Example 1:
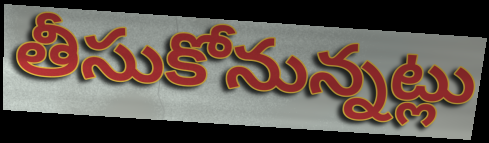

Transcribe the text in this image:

తీసుకోనున్నట్లు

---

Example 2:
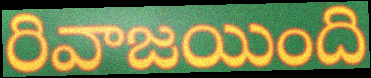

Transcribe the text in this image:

రివాజయింది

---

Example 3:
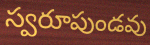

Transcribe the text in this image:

స్వరూపుండవు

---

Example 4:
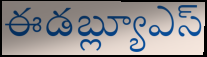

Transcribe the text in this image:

ఈడబ్ల్యూఎస్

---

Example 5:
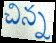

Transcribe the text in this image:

చిన్న